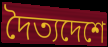
দৈত্যদেশে